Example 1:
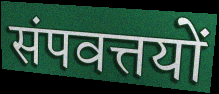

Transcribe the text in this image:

संपवत्तयों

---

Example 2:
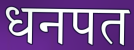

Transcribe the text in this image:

धनपत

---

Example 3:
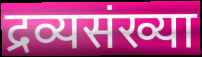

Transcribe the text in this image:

द्रव्यसंख्या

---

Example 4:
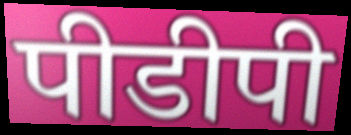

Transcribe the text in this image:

पीडीपी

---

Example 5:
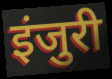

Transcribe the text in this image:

इंजुरी